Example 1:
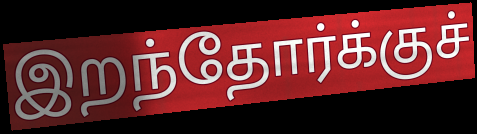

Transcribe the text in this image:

இறந்தோர்க்குச்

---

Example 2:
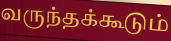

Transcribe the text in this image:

வருந்தக்கூடும்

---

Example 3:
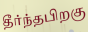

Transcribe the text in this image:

தீர்ந்தபிறகு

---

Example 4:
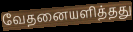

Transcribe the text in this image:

வேதனையளித்தது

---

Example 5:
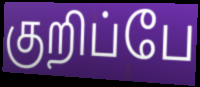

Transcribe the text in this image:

குறிப்பே